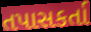
તપાસકર્તા